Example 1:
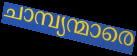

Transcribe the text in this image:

ചാമ്പ്യന്മാരെ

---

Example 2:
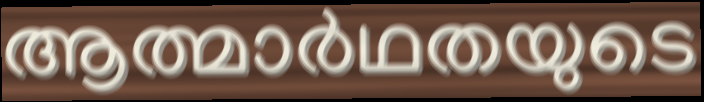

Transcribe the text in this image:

ആത്മാർഥതയുടെ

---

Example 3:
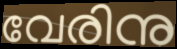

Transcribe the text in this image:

വേരിനു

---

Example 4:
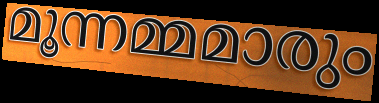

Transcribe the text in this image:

മൂന്നമ്മമാരും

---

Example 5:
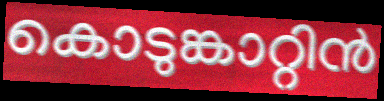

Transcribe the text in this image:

കൊടുങ്കാറ്റിൻ